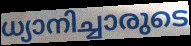
ധ്യാനിച്ചാരുടെ